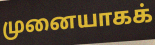
முனையாகக்